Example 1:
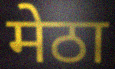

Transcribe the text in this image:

मेठा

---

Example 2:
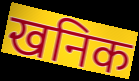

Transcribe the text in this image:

खनिक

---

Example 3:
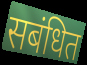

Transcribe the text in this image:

सबंधित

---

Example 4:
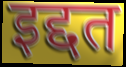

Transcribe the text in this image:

इद्दत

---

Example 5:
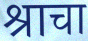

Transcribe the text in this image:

श्राचा